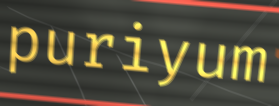
puriyum